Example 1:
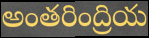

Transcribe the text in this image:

అంతరింద్రియ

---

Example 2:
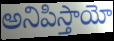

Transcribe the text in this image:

అనిపిస్తాయో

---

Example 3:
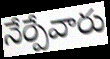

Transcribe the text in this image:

నేర్పేవారు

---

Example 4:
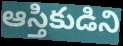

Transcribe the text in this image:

ఆస్తికుడిని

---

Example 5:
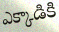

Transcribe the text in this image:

ఎక్కాడికి